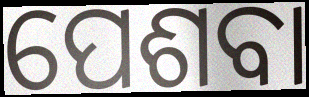
ପେଶବା